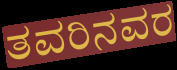
ತವರಿನವರ